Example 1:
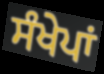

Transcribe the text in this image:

ਸੰਖੇਪਾਂ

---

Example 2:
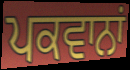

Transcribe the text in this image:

ਪਕਵਾਨਾਂ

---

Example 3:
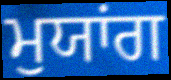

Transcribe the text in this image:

ਮੁਯਾਂਗ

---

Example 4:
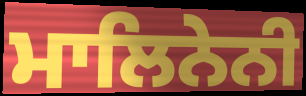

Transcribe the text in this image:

ਮਾਲਿਨੇਨੀ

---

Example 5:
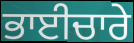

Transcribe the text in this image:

ਭਾਈਚਾਰੇ